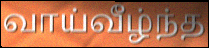
வாய்வீழ்ந்த